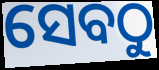
ସେବଠୁ